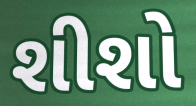
શીશો